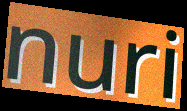
nuri